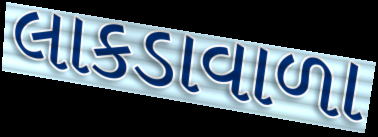
લાકડાવાળા